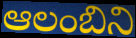
ఆలంబిని